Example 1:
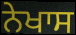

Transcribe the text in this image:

ਨੇਖਾਸ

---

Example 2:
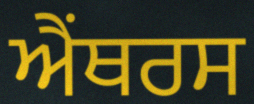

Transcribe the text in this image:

ਐਂਥਰਸ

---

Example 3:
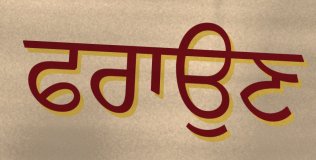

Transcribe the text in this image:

ਫਰਾਉਣ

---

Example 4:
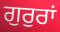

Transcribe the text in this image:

ਗੁਰੁਰਾਂ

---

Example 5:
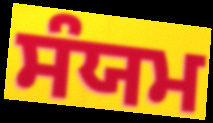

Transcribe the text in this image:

ਸੰਯਮ